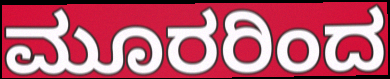
ಮೂರರಿಂದ